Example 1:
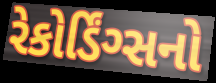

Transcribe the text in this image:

રેકોર્ડિંગ્સનો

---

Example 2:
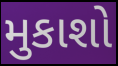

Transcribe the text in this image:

મુકાશો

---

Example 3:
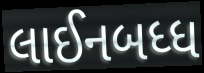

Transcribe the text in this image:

લાઈનબધ્ધ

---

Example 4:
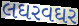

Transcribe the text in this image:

લઘરવઘર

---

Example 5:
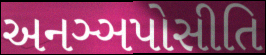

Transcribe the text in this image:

અનઞ્ઞપોસીતિ